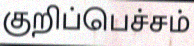
குறிப்பெச்சம்